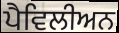
ਪੈਵਿਲੀਅਨ